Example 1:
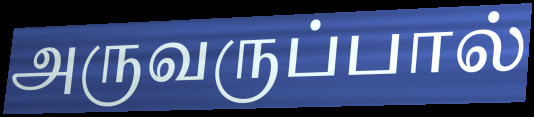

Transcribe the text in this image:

அருவருப்பால்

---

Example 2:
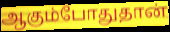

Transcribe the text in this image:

ஆகும்போதுதான்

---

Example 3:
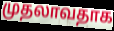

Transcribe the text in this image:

முதலாவதாக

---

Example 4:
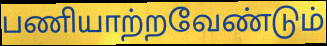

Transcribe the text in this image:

பணியாற்றவேண்டும்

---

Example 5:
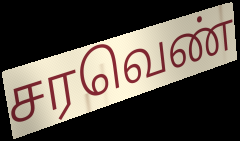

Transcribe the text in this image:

சரவெண்